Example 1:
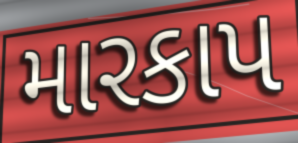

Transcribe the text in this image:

મારકાપ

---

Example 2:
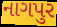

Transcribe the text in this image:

નાગપુર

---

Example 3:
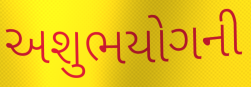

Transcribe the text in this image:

અશુભયોગની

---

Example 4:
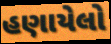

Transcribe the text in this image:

હણાયેલો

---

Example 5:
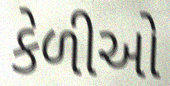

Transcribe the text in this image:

કેળીઓ